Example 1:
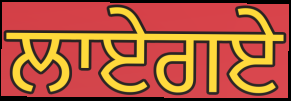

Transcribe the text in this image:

ਲਾਏਗਏ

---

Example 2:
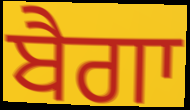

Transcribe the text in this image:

ਬੈਗਾ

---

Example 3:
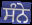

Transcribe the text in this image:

ਸੰਨੇ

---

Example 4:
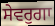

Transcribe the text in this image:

ਸੇਵਰੁਗਾ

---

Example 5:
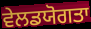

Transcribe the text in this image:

ਵੇਲਡਯੋਗਤਾ